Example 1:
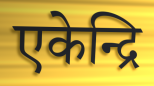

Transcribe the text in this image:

एकेन्द्रि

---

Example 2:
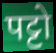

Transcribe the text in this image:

पट्टो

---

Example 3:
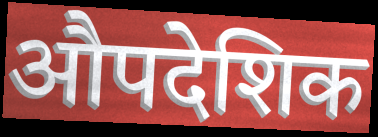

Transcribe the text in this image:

औपदेशिक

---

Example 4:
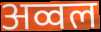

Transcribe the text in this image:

अव्वल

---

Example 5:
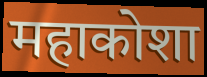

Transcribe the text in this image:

महाकोशा